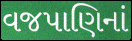
વજપાણિનાં